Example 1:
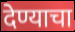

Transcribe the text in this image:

देण्याचा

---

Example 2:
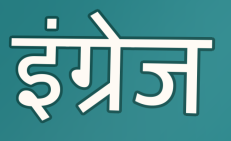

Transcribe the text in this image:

इंग्रेज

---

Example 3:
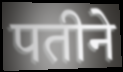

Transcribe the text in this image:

पतीने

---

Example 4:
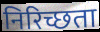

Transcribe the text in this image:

निरिच्छता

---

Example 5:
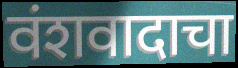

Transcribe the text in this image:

वंशवादाचा